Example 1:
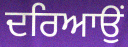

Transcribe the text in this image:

ਦਰਿਆਉਂ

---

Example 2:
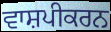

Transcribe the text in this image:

ਵਾਸ਼ਪੀਕਰਨ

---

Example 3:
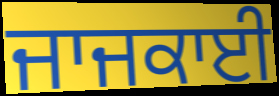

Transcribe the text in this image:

ਜਾਜਕਾਈ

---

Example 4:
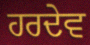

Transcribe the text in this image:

ਹਰਦੇਵ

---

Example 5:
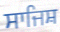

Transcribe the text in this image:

ਸਾਜਿਸ਼